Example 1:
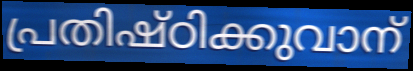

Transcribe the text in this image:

പ്രതിഷ്ഠിക്കുവാന്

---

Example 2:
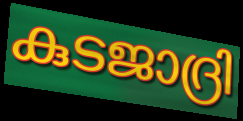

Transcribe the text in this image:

കുടജാദ്രി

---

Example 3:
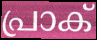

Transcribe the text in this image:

പ്രാക്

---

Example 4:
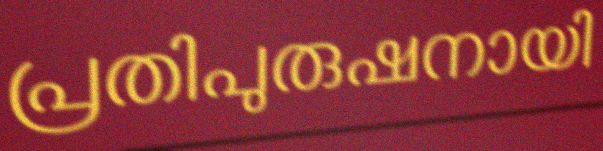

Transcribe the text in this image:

പ്രതിപുരുഷനായി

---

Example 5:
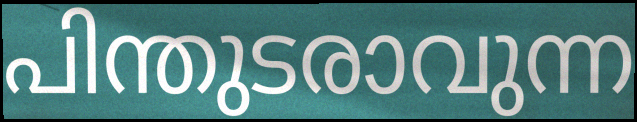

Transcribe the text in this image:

പിന്തുടരാവുന്ന